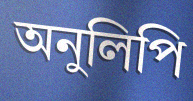
অনুলিপি